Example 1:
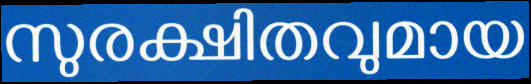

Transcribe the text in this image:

സുരക്ഷിതവുമായ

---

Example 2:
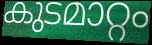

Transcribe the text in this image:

കുടമാറ്റം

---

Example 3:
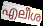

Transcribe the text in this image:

എലീശ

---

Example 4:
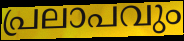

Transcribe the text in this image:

പ്രലാപവും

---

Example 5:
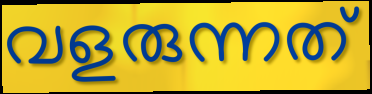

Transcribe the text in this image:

വളരുന്നത്